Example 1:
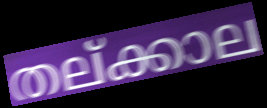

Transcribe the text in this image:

തല്ക്കാല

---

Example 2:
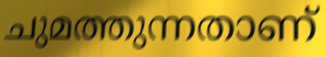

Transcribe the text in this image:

ചുമത്തുന്നതാണ്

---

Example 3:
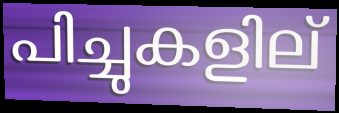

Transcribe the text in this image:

പിച്ചുകളില്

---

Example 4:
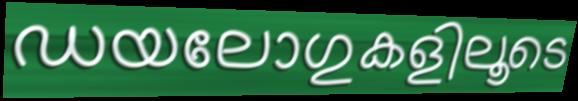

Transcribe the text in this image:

ഡയലോഗുകളിലൂടെ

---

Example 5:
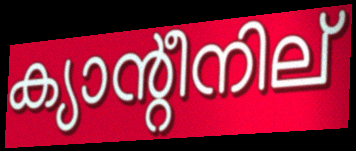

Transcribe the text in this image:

ക്യാന്റീനില്